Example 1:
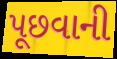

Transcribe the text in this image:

પૂછવાની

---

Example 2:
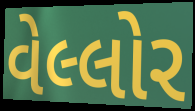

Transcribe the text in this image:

વેલ્લોર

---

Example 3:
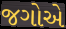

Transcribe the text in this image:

જગોએ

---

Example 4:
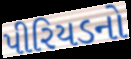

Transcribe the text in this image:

પીરિયડનો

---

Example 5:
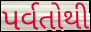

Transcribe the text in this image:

પર્વતોથી